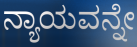
ನ್ಯಾಯವನ್ನೇ